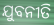
ଯୁବନୀତି